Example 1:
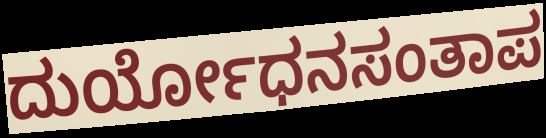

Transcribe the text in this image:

ದುರ್ಯೋಧನಸಂತಾಪ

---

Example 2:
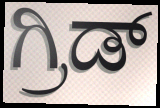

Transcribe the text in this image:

ಗ್ರಿಡ್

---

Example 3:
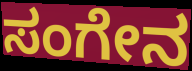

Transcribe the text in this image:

ಸಂಗೇನ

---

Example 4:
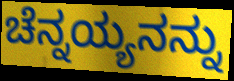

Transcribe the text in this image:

ಚೆನ್ನಯ್ಯನನ್ನು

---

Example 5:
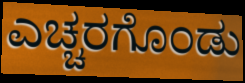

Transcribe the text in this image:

ಎಚ್ಚರಗೊಂಡು